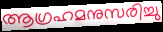
ആഗ്രഹമനുസരിച്ചു